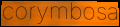
corymbosa